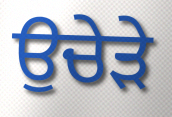
ਉਚੇੜੇ